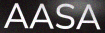
AASA